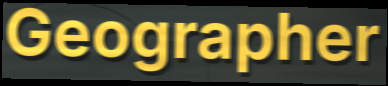
Geographer